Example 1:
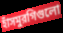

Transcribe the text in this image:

হাঁসমুরগিগুলো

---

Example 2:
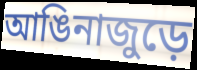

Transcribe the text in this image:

আঙিনাজুড়ে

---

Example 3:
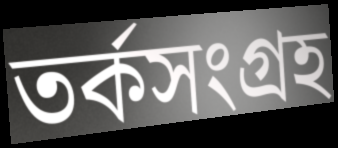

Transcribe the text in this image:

তর্কসংগ্রহ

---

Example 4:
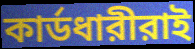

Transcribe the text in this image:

কার্ডধারীরাই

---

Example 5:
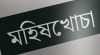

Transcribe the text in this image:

মহিষখোচা